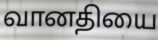
வானதியை